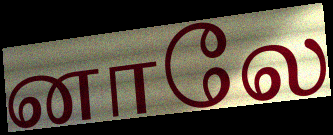
னாலே